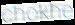
chokhe